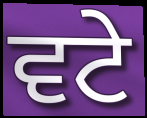
ਵਟੇ